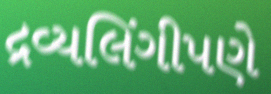
દ્રવ્યલિંગીપણે